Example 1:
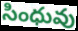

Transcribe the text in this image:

సింధువు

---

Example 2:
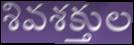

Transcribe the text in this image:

శివశక్తుల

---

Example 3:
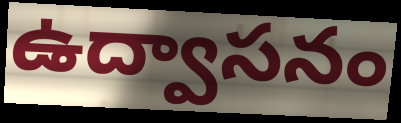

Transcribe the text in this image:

ఉద్వాసనం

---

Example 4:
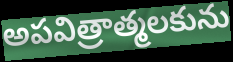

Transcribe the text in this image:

అపవిత్రాత్మలకును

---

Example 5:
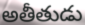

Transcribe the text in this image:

అతీతుడు